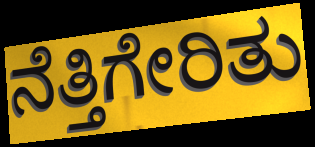
ನೆತ್ತಿಗೇರಿತು